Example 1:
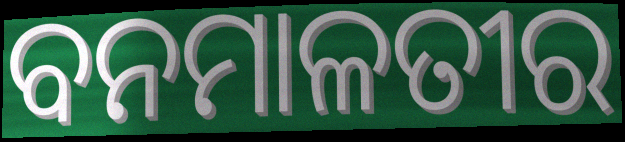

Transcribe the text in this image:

ବନମାଳତୀର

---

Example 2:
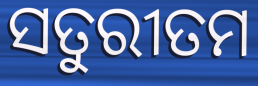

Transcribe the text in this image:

ସତୁରୀତମ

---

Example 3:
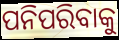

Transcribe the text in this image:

ପନିପରିବାକୁ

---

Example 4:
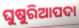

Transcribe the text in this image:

ଘୁଷୁରିଆପଦା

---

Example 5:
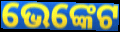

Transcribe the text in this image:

ଭେଙ୍କେଟ